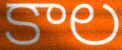
కాల